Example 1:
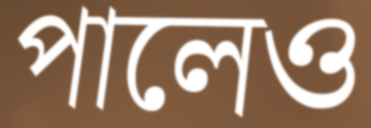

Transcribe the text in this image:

পালেও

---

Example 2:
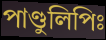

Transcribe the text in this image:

পাণ্ডুলিপিঃ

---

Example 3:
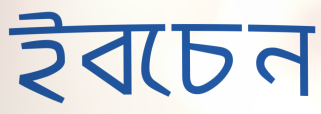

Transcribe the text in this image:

ইবচেন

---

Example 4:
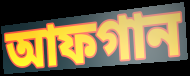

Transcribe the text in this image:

আফগান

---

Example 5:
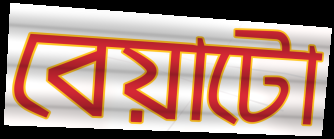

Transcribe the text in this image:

বেয়াটো